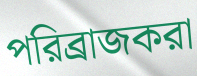
পরিব্রাজকরা